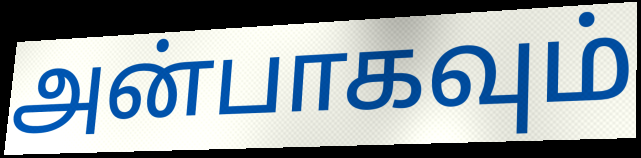
அன்பாகவும்